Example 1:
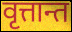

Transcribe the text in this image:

वृत्तान्त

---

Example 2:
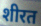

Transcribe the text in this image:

शीरत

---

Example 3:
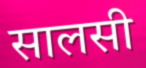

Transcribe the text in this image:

सालसी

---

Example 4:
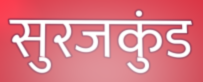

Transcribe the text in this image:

सुरजकुंड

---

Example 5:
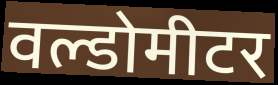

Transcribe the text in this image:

वल्डोमीटर